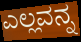
ಎಲ್ಲವನ್ನ